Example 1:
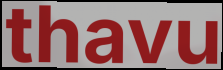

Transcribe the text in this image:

thavu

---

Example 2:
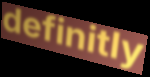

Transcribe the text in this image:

definitly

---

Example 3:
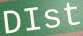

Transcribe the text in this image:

DIst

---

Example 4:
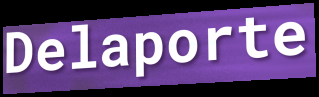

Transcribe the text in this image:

Delaporte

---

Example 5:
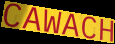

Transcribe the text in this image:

CAWACH